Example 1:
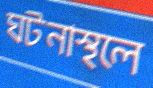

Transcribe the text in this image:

ঘটনাস্থলে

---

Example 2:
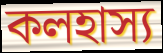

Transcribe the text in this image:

কলহাস্য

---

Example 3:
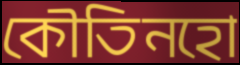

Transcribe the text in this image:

কৌতিনহো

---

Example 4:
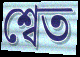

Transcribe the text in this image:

শ্বেত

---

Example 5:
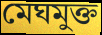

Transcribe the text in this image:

মেঘমুক্ত